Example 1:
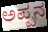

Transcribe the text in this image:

ಅಪ್ಪನ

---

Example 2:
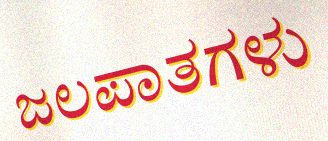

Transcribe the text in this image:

ಜಲಪಾತಗಳು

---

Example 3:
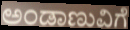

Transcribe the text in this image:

ಅಂಡಾಣುವಿಗೆ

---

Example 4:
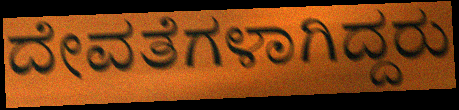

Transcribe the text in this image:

ದೇವತೆಗಳಾಗಿದ್ದರು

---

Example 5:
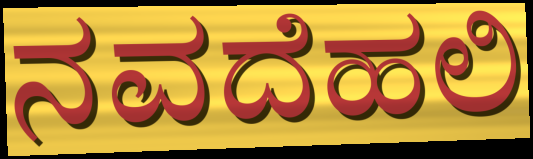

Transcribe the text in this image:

ನವದೆಹಲಿ